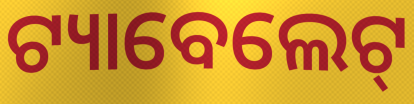
ଟ୍ୟାବେଲେଟ୍